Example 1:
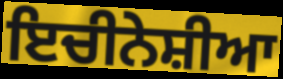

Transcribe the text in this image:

ਇਚੀਨੇਸ਼ੀਆ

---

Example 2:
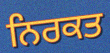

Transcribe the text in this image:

ਨਿਰਕਤ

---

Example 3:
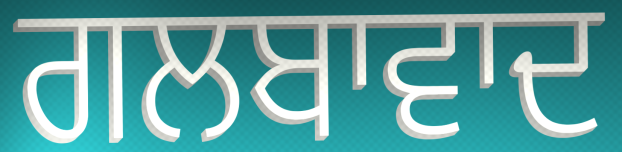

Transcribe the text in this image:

ਗਲਬਾਵਾਦ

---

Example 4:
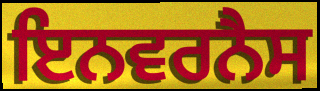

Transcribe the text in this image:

ਇਨਵਰਨੈਸ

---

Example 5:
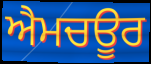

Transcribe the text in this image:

ਐਮਚਊਰ